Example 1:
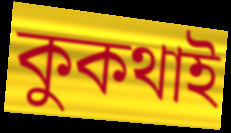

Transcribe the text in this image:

কুকথাই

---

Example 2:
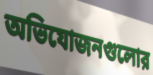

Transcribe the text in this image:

অভিযোজনগুলোর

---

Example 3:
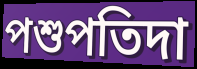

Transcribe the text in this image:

পশুপতিদা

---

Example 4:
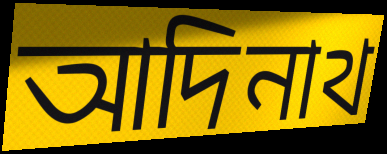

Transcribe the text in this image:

আদিনাথ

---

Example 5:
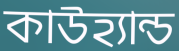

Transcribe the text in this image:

কাউহ্যান্ড